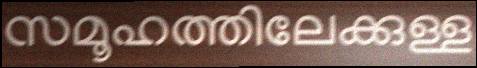
സമൂഹത്തിലേക്കുള്ള